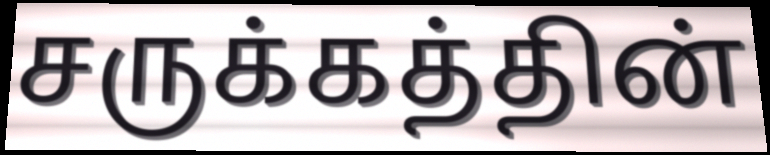
சருக்கத்தின்